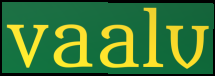
vaalu